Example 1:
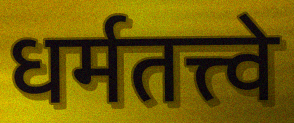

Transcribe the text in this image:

धर्मतत्त्वे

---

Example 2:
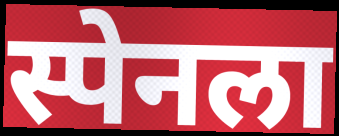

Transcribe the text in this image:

स्पेनला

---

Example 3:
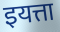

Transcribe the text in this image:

इयत्ता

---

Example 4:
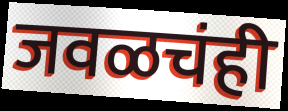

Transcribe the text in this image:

जवळचंही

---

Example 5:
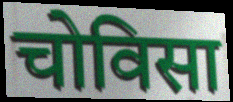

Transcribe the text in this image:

चोविसा